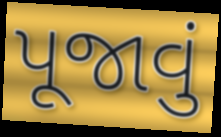
પૂજાવું